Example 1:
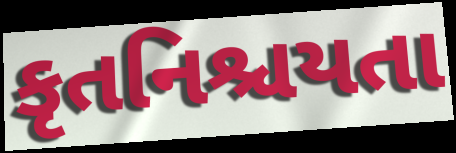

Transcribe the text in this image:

કૃતનિશ્ચયતા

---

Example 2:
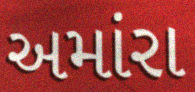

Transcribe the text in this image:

અમાંરા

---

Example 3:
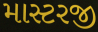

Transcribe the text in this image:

માસ્ટરજી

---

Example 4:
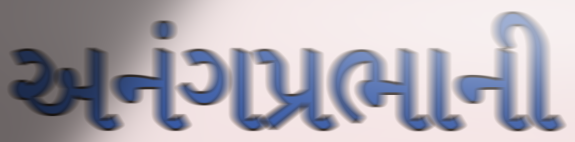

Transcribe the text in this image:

અનંગપ્રભાની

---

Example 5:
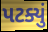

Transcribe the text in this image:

પટક્યું